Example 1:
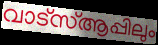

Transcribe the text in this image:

വാട്സ്ആപ്പിലും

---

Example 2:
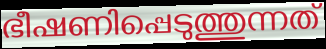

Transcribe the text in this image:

ഭീഷണിപ്പെടുത്തുന്നത്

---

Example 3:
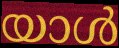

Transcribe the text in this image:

യാൾ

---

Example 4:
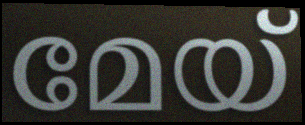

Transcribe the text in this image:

മേയ്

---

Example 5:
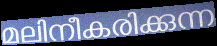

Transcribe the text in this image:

മലിനീകരിക്കുന്ന